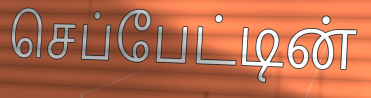
செப்பேட்டின்